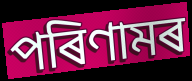
পৰিণামৰ